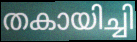
തകായിച്ചി